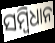
ସମ୍ୱିଧାନ